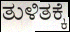
ತುಳಿತಕ್ಕೆ